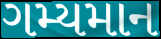
ગમ્યમાન